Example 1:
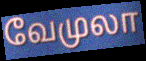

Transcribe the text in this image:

வேமுலா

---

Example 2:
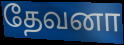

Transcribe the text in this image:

தேவனா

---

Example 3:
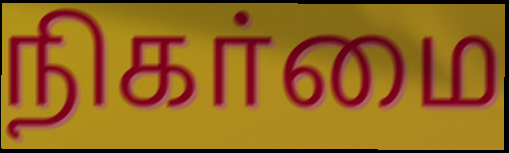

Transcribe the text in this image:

நிகர்மை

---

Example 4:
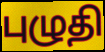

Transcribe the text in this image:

புழுதி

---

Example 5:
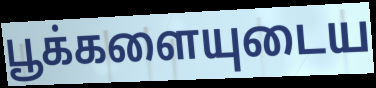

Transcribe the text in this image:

பூக்களையுடைய